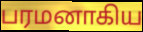
பரமனாகிய